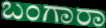
ಬಂಗಾರಾ